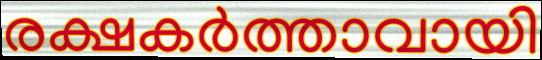
രക്ഷകർത്താവായി